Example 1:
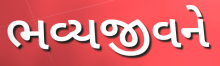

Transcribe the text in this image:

ભવ્યજીવને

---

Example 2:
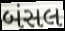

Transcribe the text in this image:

બંસલ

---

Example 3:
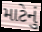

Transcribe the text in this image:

માટેનું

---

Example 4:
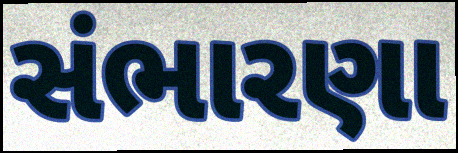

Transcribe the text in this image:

સંભારણા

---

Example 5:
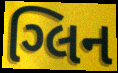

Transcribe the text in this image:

ગ્લિન